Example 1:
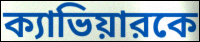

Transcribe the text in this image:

ক্যাভিয়ারকে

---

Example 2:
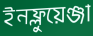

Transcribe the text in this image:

ইনফ্লুয়েঞ্জা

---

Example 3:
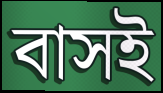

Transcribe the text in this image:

বাসই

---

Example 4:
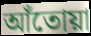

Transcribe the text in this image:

আঁতোয়া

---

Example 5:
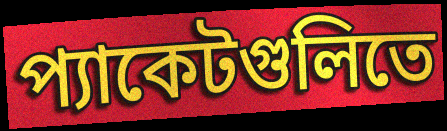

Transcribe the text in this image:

প্যাকেটগুলিতে